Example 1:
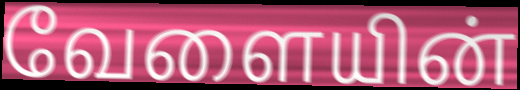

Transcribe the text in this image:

வேளையின்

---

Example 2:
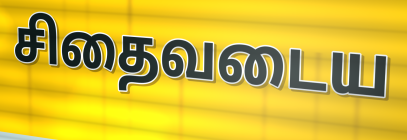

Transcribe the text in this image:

சிதைவடைய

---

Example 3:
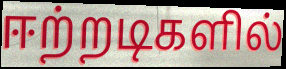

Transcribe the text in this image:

ஈற்றடிகளில்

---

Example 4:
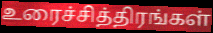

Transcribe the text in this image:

உரைச்சித்திரங்கள்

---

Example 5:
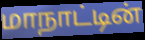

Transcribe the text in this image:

மாநாட்டின்